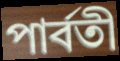
পার্বতী